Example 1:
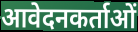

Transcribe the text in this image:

आवेदनकर्ताओं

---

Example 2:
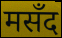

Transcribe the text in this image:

मसँद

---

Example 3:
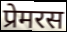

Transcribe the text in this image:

प्रेमरस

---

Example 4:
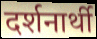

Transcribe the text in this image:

दर्शनार्थी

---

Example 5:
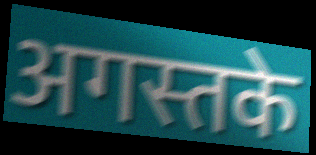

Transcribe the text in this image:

अगस्तके